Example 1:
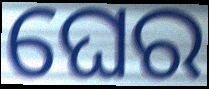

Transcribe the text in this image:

ଘେର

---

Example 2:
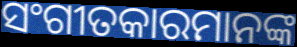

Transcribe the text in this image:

ସଂଗୀତକାରମାନଙ୍କ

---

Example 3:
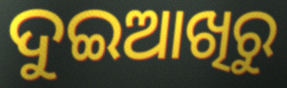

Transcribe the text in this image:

ଦୁଇଆଖିରୁ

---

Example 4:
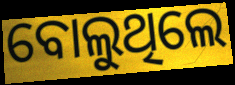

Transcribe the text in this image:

ବୋଲୁଥିଲେ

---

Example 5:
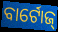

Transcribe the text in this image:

ବାର୍ଟୋଜ୍